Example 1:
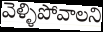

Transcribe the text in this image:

వెళ్ళిపోవాలని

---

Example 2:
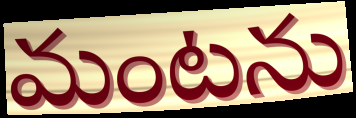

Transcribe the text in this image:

మంటను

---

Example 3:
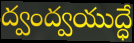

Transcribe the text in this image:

ద్వంద్వయుద్ధే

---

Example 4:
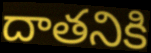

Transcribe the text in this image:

దాతనికి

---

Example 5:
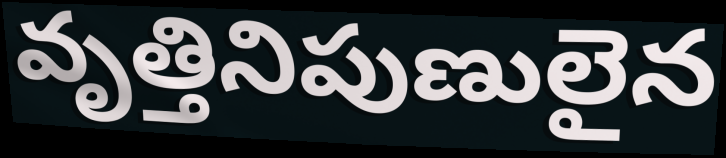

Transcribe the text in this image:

వృత్తినిపుణులైన